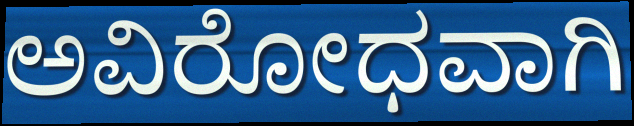
ಅವಿರೋಧವಾಗಿ